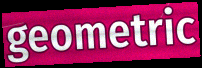
geometric